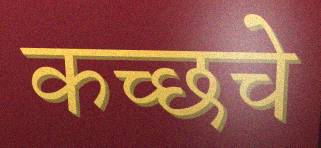
कच्छचे